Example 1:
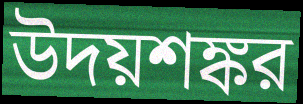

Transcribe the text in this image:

উদয়শঙ্কর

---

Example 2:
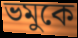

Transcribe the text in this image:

ভমুকে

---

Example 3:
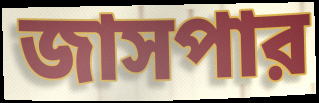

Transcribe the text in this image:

জাসপার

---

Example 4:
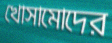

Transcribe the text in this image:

খোসামোদের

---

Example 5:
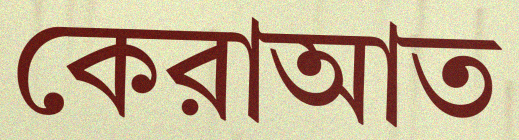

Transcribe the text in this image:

কেরাআত